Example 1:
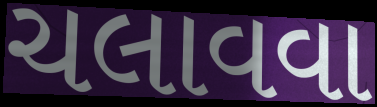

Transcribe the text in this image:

ચલાવવા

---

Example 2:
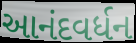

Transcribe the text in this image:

આનંદવર્ધન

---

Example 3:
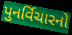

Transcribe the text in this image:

પુનર્વિચારનો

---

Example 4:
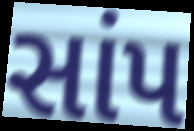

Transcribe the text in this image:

સાંપ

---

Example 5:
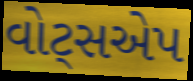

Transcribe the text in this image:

વોટ્સએપ